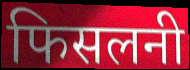
फिसलनी